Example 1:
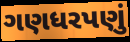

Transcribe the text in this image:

ગણધરપણું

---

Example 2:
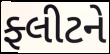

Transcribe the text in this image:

ફ્લીટને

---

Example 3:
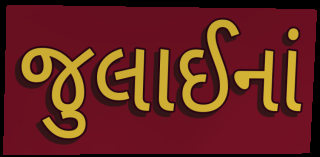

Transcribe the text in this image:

જુલાઈનાં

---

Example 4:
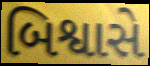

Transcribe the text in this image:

બિશ્વાસે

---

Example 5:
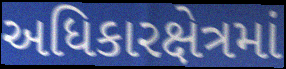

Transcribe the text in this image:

અધિકારક્ષેત્રમાં